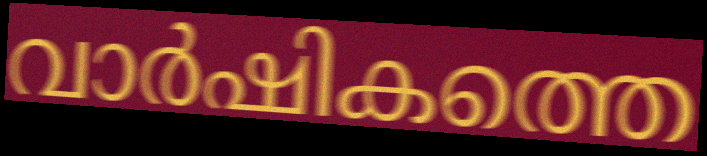
വാർഷികത്തെ